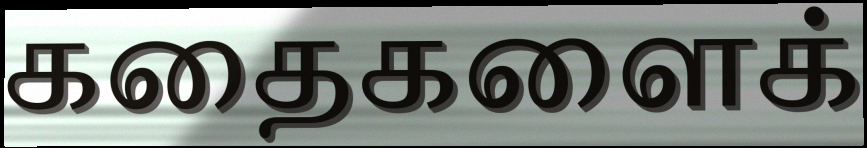
கதைகளைக்